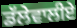
ਡੱਲੇਵਾਲੀਏ